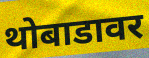
थोबाडावर